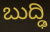
ಬುದ್ಢಿ